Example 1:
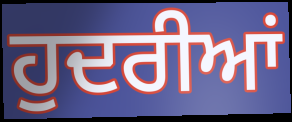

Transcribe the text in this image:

ਹੁਦਰੀਆਂ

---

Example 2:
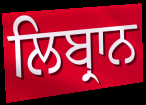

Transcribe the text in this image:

ਲਿਬ੍ਰਾਨ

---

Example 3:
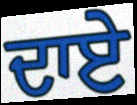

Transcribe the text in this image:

ਦਾਏ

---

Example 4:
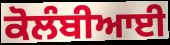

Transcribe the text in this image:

ਕੋਲੰਬੀਆਈ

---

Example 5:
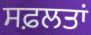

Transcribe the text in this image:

ਸਫ਼ਲਤਾਂ